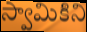
స్వామికిని